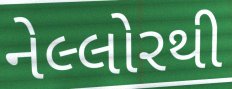
નેલ્લોરથી